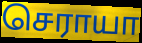
செராயா